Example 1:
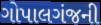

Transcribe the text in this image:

ગોપાલગંજની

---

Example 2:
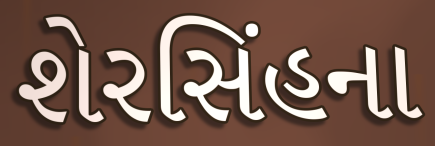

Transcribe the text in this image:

શેરસિંહના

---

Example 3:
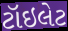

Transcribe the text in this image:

ટૉઇલેટ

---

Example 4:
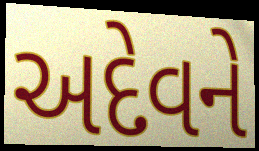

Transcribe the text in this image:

અદેવને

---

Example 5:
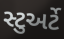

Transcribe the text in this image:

સ્ટુઅર્ટે